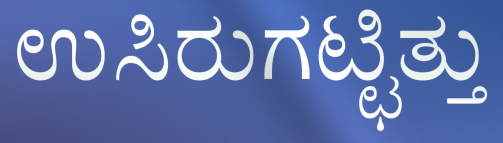
ಉಸಿರುಗಟ್ಟಿತ್ತು